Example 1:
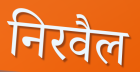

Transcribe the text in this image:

निरवैल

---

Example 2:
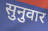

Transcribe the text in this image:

सुनुवार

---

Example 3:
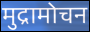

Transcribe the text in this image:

मुद्रामोचन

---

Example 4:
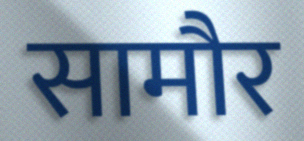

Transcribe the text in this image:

सामौर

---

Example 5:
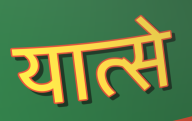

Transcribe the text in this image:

यात्से